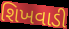
શિખવાડી